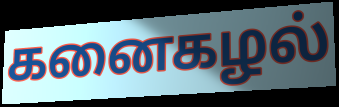
கனைகழல்